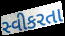
સ્વીકરતા